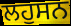
ਲਹੁਸਨ